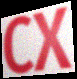
CX